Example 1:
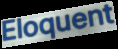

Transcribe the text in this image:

Eloquent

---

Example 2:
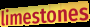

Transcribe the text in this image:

limestones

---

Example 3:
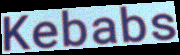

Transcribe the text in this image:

Kebabs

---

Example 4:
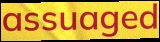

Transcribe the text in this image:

assuaged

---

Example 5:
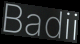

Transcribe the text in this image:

Badii